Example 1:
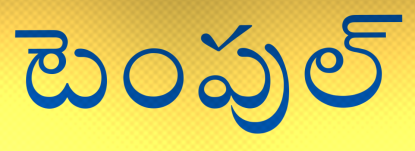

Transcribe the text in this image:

టెంపుల్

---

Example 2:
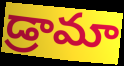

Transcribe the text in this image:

డ్రామా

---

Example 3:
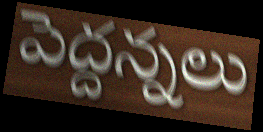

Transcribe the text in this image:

పెద్దన్నలు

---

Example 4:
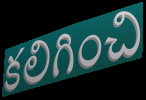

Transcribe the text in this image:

కలిగించి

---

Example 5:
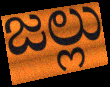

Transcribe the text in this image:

జల్లు